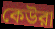
কেউরা